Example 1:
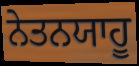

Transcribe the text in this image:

ਨੇਤਨਯਾਹੂ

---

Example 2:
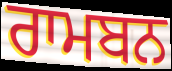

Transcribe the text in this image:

ਰਾਮਬਨ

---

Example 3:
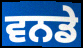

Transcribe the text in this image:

ਵਨਡੇ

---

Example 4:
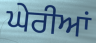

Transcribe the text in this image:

ਘੇਰੀਆਂ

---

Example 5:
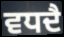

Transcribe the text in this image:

ਵਧਦੈ